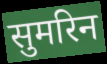
सुमरिन